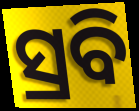
ସ୍ରବି